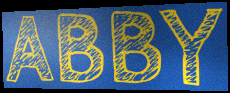
ABBY